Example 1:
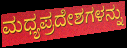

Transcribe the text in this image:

ಮಧ್ಯಪ್ರದೇಶಗಳನ್ನು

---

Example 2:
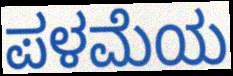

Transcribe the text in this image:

ಪಳಮೆಯ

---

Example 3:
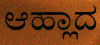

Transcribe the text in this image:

ಆಹ್ಲಾದ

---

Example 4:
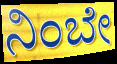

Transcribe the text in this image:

ನಿಂಬೇ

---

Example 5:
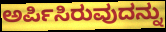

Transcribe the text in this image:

ಅರ್ಪಿಸಿರುವುದನ್ನು